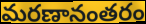
మరణానంతరం